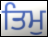
ਤਿਮੁ